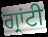
ਗ੍ਰਾਂਟੀ